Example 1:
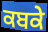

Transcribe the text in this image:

ਕਬਕੇ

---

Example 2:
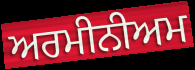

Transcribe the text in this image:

ਅਰਮੀਨੀਅਮ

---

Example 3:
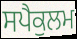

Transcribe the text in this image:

ਸਪੈਕੁਲਮ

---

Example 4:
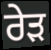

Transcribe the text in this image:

ਰੇੜ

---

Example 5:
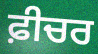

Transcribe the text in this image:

ਫ਼ੀਚਰ